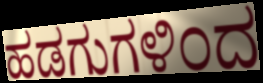
ಹಡಗುಗಳಿಂದ